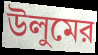
উলুমের